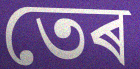
তেৰ